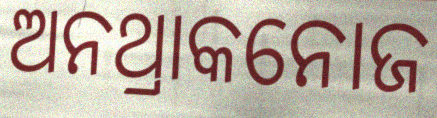
ଅନଥ୍ରାକନୋଜ